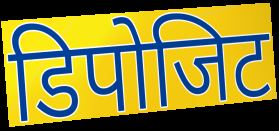
डिपोजिट